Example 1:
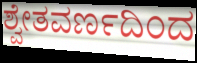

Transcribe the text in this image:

ಶ್ವೇತವರ್ಣದಿಂದ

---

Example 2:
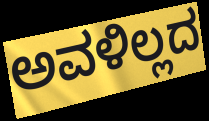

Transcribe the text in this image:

ಅವಳಿಲ್ಲದ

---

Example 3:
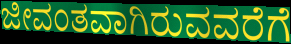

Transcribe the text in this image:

ಜೀವಂತವಾಗಿರುವವರೆಗೆ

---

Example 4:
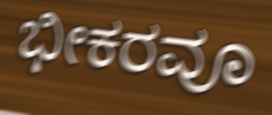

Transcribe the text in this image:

ಭೀಕರವೂ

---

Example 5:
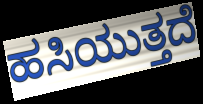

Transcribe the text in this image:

ಹಸಿಯುತ್ತದೆ